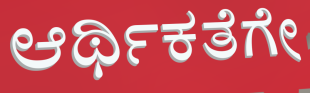
ಆರ್ಥಿಕತೆಗೇ